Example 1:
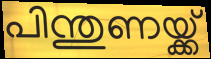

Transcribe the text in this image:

പിന്തുണയ്ക്ക്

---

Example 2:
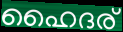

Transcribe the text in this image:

ഹൈദര്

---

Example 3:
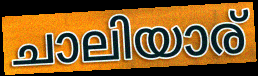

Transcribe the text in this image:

ചാലിയാര്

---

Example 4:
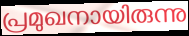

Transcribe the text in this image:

പ്രമുഖനായിരുന്നു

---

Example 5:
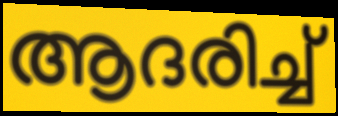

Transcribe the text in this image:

ആദരിച്ച്